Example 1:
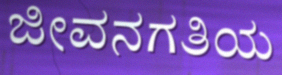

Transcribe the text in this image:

ಜೀವನಗತಿಯ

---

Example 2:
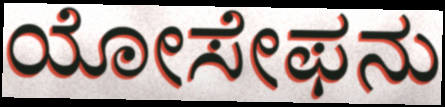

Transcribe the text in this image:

ಯೋಸೇಫನು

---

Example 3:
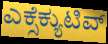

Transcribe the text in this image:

ಎಕ್ಸೆಕ್ಯುಟಿವ್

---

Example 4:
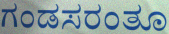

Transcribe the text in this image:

ಗಂಡಸರಂತೂ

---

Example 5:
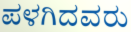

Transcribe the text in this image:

ಪಳಗಿದವರು